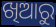
ଖିଆରୁ